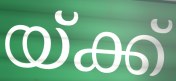
യ്ക്ക്